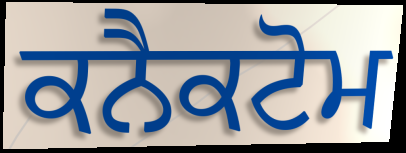
ਕਨੈਕਟੋਮ